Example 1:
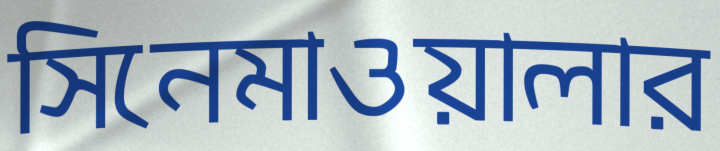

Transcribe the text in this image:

সিনেমাওয়ালার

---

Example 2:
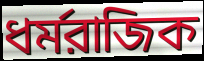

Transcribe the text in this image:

ধর্মরাজিক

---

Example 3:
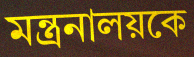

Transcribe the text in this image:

মন্ত্রনালয়কে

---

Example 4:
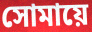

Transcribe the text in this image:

সোমায়ে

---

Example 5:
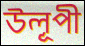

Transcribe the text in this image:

উলূপী